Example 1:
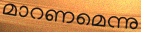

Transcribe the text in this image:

മാറണമെന്നു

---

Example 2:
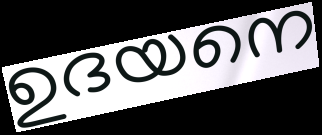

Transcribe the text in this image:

ഉദയനെ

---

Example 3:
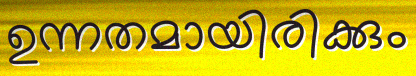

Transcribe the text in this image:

ഉന്നതമായിരിക്കും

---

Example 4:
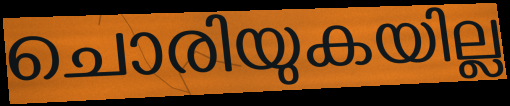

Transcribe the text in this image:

ചൊരിയുകയില്ല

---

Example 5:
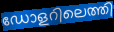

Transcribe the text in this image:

ഡോളറിലെത്തി